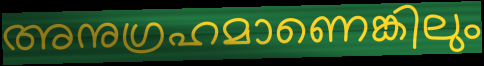
അനുഗ്രഹമാണെങ്കിലും